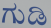
ಗುಡಿ